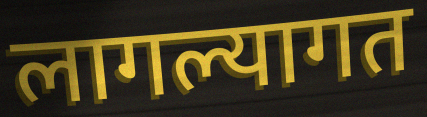
लागल्यागत